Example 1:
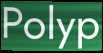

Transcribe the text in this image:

Polyp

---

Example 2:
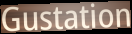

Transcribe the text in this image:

Gustation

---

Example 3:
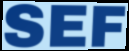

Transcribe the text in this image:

SEF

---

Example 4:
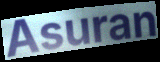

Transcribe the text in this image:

Asuran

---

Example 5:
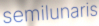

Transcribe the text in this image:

semilunaris